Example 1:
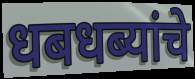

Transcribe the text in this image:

धबधब्यांचे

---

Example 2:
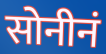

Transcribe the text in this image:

सोनीनं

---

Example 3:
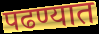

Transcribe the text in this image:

पढण्यात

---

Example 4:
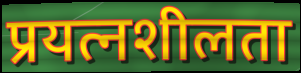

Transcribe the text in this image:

प्रयत्नशीलता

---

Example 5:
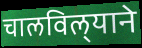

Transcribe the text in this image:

चालविल्याने